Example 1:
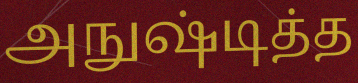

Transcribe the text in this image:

அநுஷ்டித்த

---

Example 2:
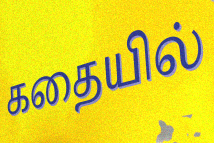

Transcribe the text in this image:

கதையில்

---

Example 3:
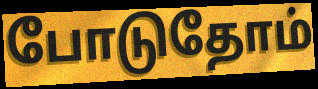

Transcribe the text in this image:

போடுதோம்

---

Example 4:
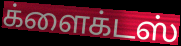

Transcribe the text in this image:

க்ளைக்டஸ்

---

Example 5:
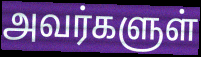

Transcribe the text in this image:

அவர்களுள்